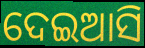
ଦେଇଆସି